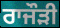
ਰਾਜੌੜੀ